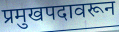
प्रमुखपदावरून